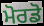
ਮੋਰਡੋ